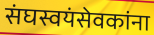
संघस्वयंसेवकांना